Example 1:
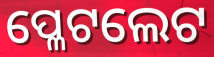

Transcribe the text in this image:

ପ୍ଳେଟଲେଟ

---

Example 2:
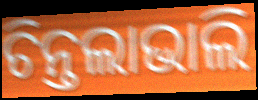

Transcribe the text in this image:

ଚିନ୍ତଲାଭାଲି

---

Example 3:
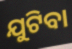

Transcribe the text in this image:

ଯୁଟିବା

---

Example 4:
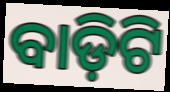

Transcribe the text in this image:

ବାଡ଼ିଟି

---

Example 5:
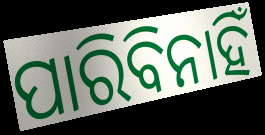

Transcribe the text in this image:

ପାରିବିନାହିଁ